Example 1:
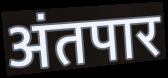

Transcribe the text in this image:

अंतपार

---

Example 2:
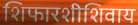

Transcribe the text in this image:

शिफारशीशिवाय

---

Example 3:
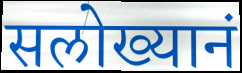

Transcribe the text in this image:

सलोख्यानं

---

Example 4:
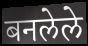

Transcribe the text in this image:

बनलेले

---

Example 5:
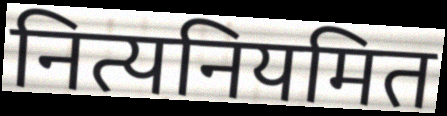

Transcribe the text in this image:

नित्यनियमित